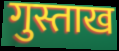
गुस्ताख